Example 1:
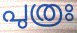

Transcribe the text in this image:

പുത്രഃ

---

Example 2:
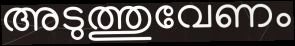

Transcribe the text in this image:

അടുത്തുവേണം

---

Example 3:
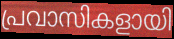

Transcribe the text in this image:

പ്രവാസികളായി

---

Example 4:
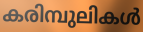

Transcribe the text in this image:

കരിമ്പുലികൾ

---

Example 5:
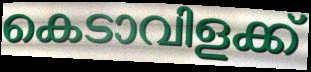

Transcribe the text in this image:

കെടാവിളക്ക്